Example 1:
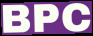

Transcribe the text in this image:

BPC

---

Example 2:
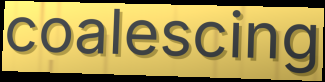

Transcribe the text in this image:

coalescing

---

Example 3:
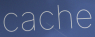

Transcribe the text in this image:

cache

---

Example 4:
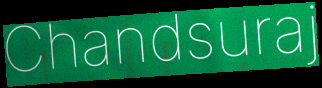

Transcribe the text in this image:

Chandsuraj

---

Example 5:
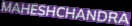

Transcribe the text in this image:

MAHESHCHANDRA